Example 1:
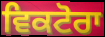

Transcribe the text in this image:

ਵਿਕਟੋਰਾ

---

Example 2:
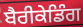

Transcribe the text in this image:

ਬੈਰੀਕੇਡਿੰਗ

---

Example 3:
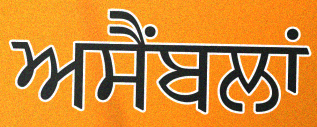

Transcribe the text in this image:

ਅਸੈਂਬਲਾਂ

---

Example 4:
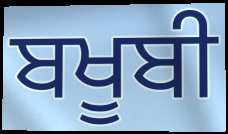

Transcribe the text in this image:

ਬਖੂਬੀ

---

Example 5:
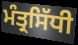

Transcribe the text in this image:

ਮੰਤ੍ਰਸਿੱਧੀ